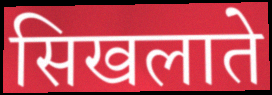
सिखलाते